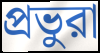
প্রভুরা